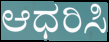
ಆಧರಿಸಿ